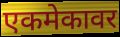
एकमेकावर